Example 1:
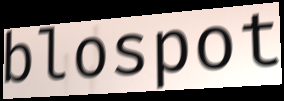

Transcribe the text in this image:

blospot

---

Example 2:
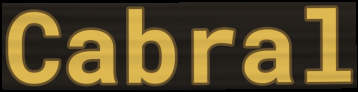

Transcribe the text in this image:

Cabral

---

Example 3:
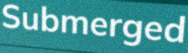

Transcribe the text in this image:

Submerged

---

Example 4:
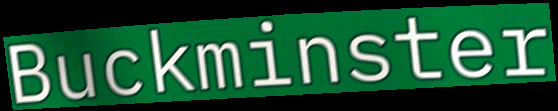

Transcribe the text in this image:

Buckminster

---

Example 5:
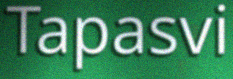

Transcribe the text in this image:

Tapasvi